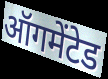
ऑगमेंटेड